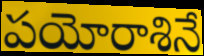
పయోరాశినే